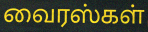
வைரஸ்கள்